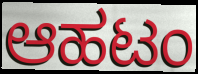
ಆಹಟಂ